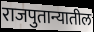
राजपुतान्यातील